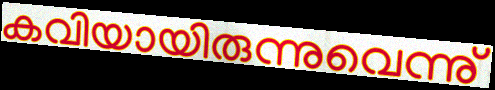
കവിയായിരുന്നുവെന്നു്